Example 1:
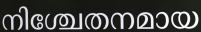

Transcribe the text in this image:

നിശ്ചേതനമായ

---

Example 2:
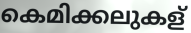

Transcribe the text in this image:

കെമിക്കലുകള്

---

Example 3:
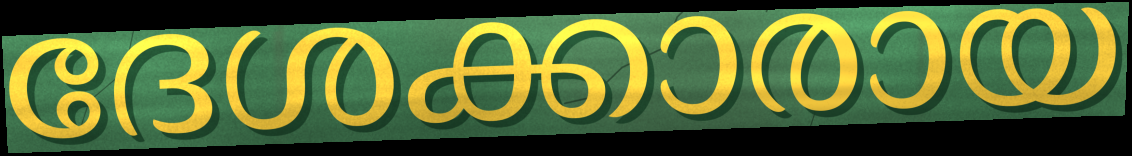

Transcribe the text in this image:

ദേശക്കാരായ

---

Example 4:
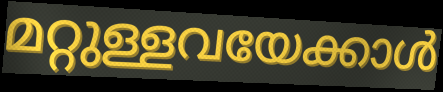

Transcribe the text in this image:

മറ്റുള്ളവയേക്കാൾ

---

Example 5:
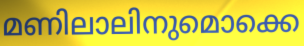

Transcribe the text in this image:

മണിലാലിനുമൊക്കെ